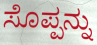
ಸೊಪ್ಪನ್ನು